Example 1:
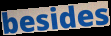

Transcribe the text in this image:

besides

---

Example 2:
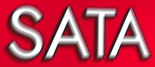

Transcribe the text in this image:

SATA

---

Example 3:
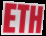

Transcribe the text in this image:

ETH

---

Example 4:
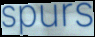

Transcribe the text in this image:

spurs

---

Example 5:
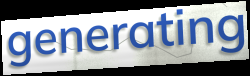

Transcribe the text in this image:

generating